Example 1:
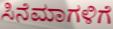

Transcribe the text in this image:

ಸಿನೆಮಾಗಳಿಗೆ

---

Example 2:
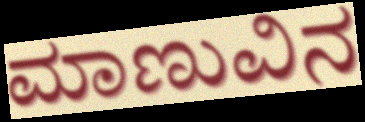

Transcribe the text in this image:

ಮಾಣುವಿನ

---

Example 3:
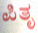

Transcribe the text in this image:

ಪಿತೃ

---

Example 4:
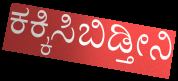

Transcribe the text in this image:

ಕಕ್ಕಿಸಿಬಿಡ್ತೀನಿ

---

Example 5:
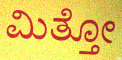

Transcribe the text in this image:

ಮಿತ್ತೋ